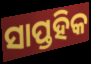
ସାପ୍ତହିକ